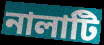
নালাটি